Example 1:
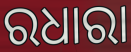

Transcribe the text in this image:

ରଧାରା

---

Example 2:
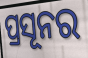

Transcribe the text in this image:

ପ୍ରସୂନର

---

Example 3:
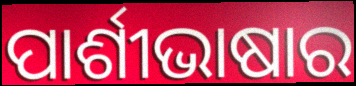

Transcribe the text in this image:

ପାର୍ଶୀଭାଷାର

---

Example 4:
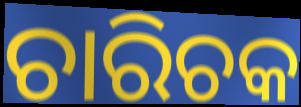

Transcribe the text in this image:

ଚାରିଚକ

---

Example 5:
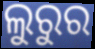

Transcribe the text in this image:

ଲୁରୁର